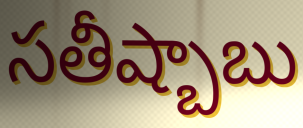
సతీష్బాబు